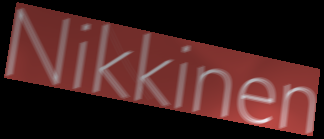
Nikkinen